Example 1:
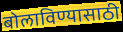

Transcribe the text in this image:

बोलाविण्यासाठी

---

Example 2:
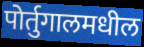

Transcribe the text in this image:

पोर्तुगालमधील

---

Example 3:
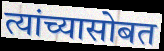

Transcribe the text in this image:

त्यांच्यासोबत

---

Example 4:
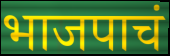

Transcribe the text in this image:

भाजपाचं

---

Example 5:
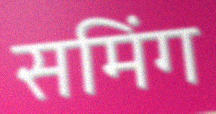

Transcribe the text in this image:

समिंग